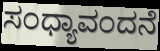
ಸಂಧ್ಯಾವಂದನೆ